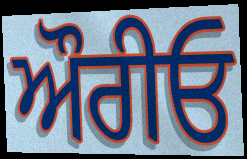
ਔਰੀਓ